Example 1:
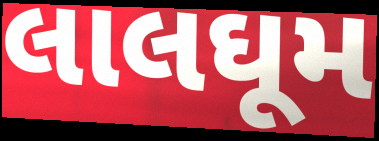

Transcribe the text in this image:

લાલઘૂમ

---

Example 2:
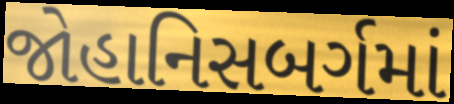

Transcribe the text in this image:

જોહાનિસબર્ગમાં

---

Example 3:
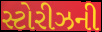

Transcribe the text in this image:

સ્ટોરીઝની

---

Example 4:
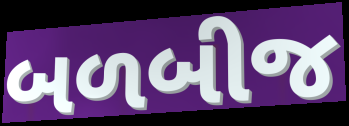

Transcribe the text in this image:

બળબીજ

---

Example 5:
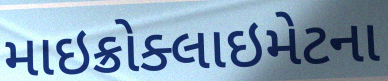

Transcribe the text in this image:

માઇક્રોક્લાઇમેટના